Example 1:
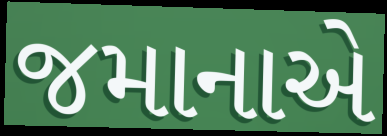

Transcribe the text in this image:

જમાનાએ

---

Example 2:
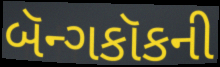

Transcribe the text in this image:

બૅન્ગકૉકની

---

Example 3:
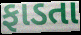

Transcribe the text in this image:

ફાડતા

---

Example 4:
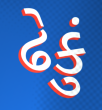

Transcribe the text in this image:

ઢેકું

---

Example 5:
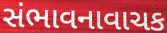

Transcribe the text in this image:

સંભાવનાવાચક